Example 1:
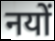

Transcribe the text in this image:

नयों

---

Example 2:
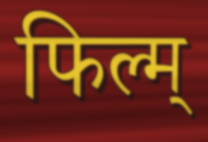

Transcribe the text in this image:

फिल्म्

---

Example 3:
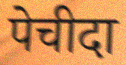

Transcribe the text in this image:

पेचीदा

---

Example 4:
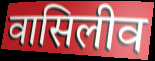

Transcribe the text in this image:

वासिलीव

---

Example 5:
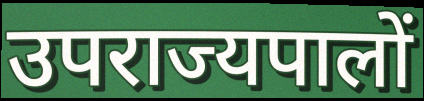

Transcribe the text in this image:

उपराज्यपालों